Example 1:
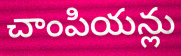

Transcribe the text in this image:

చాంపియన్లు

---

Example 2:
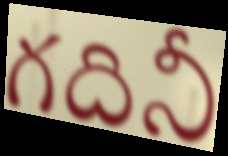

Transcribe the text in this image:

గదినీ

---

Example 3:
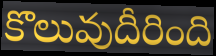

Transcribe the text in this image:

కొలువుదీరింది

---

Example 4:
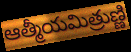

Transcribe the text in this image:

ఆత్మీయమిత్రుణ్ణి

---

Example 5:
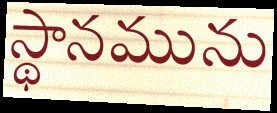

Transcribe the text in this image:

స్థానమును